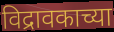
विद्रावकाच्या